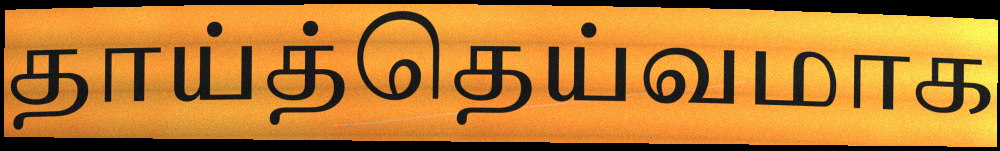
தாய்த்தெய்வமாக